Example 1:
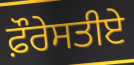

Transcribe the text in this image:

ਫ਼ੌਰੇਸਤੀਏ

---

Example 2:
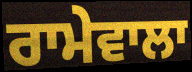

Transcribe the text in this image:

ਰਾਮੇਵਾਲਾ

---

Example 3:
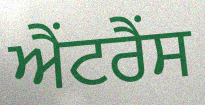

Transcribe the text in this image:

ਐਂਟਰੈਂਸ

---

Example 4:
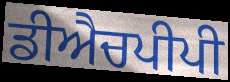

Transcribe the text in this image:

ਡੀਐਚਪੀਪੀ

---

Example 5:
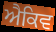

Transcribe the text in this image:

ਐਕਿਵ